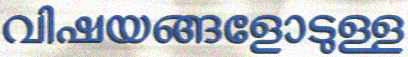
വിഷയങ്ങളോടുള്ള